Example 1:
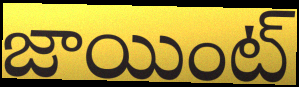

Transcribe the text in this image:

జాయింట్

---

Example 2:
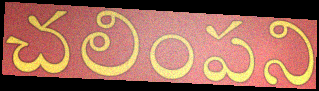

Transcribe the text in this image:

చలింపని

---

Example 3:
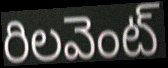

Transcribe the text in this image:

రిలవెంట్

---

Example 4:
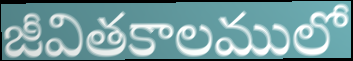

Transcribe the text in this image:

జీవితకాలములో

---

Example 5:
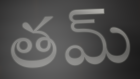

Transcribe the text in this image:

తమ్